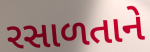
રસાળતાને